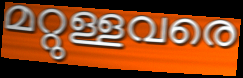
മറ്റുള്ളവരെ